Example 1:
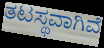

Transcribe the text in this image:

ತಟಸ್ಥವಾಗಿವೆ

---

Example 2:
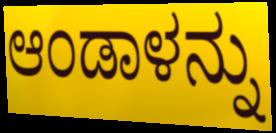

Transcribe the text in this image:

ಆಂಡಾಳನ್ನು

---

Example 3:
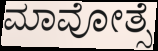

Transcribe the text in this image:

ಮಾವೋತ್ಸೆ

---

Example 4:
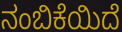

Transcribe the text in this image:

ನಂಬಿಕೆಯಿದೆ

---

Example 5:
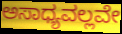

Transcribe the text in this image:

ಅಸಾಧ್ಯವಲ್ಲವೇ